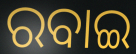
ରବାଇ